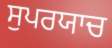
ਸੁਪਰਯਾਚ